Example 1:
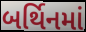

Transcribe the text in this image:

બર્થિનમાં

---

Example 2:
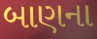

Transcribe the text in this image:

બાણના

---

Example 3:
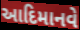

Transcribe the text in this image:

આદિમાનવે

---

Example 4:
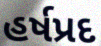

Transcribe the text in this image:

હર્ષપ્રદ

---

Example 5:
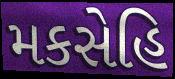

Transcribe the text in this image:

મકસેહિ